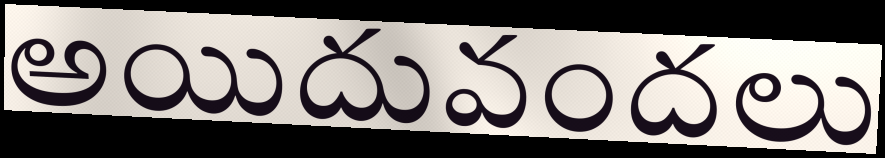
అయిదువందలు